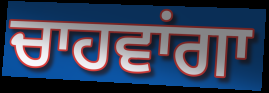
ਚਾਹਵਾਂਗਾ